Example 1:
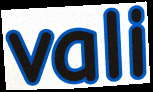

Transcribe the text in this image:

vali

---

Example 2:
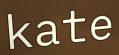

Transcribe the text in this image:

kate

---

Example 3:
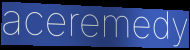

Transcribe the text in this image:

aceremedy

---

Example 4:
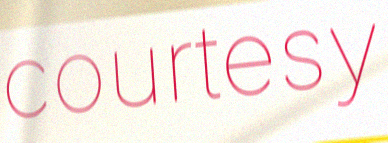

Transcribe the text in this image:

courtesy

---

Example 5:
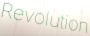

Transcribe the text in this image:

Revolution